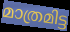
മാത്രമിട്ട